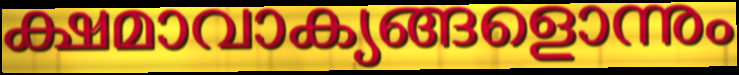
ക്ഷമാവാക്യങ്ങളൊന്നും